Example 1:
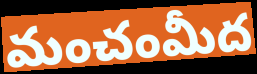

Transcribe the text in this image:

మంచంమీద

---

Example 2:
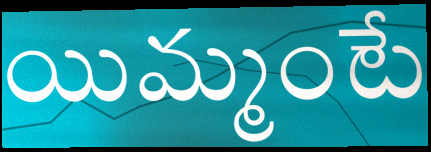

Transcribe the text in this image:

యిమ్మంటే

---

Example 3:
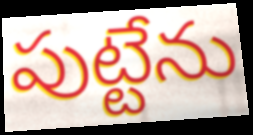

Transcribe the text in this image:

పుట్టేను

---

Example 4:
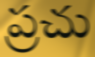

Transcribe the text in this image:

ప్రచు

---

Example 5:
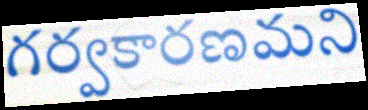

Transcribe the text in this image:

గర్వకారణమని